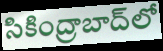
సికింద్రాబాద్‌లో